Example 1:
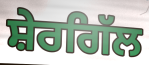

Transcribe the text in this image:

ਸ਼ੇਰਗਿੱਲ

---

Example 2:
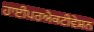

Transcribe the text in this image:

ਹਾਈਪਰਐਕਟੀਵੇਸ਼ਨ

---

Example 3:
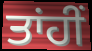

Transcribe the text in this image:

ਤਾਂਹੀਂ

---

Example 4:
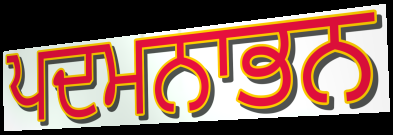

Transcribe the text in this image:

ਪਦਮਨਾਭਨ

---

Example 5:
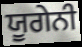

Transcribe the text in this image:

ਯੂਗੇਨੀ